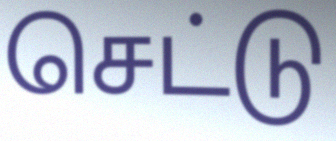
செட்டு